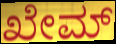
ಖೇಮ್